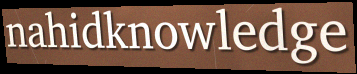
nahidknowledge